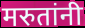
मरुतांनी